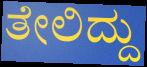
ತೇಲಿದ್ದು